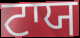
ਟਾਯ